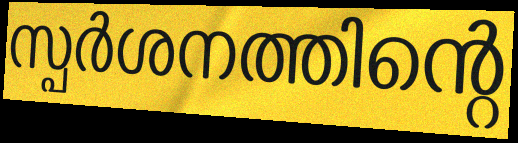
സ്പർശനത്തിന്റെ